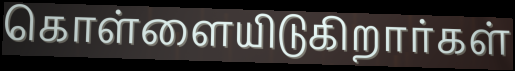
கொள்ளையிடுகிறார்கள்